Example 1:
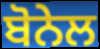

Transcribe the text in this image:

ਬੋਨੇਲ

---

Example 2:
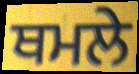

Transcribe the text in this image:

ਥਮਲੇ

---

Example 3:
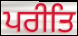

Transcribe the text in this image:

ਪਰੀਤਿ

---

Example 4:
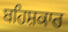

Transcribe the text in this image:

ਬਹਿਸ਼ਕਾਰ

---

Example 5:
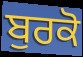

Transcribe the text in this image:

ਬੁਰਕੋ